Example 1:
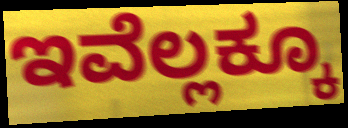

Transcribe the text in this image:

ಇವೆಲ್ಲಕ್ಕೂ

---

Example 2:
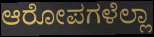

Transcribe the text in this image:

ಆರೋಪಗಳೆಲ್ಲಾ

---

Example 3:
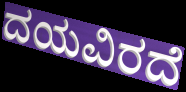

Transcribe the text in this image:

ದಯವಿರದೆ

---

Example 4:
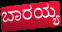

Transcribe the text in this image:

ಬಾರಯ್ಯ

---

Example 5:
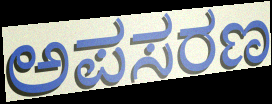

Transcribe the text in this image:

ಅಪಸರಣ